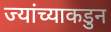
ज्यांच्याकडुन